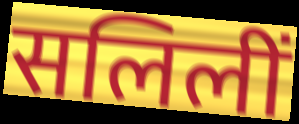
सलिलीं